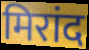
मिरांद